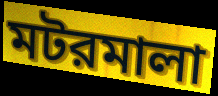
মটরমালা